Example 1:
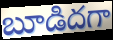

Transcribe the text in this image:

బూడిదగా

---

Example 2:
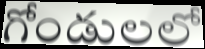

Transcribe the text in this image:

గోండులలో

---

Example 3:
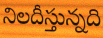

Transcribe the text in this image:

నిలదీస్తున్నది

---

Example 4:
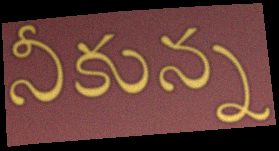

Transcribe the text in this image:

నీకున్న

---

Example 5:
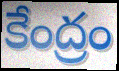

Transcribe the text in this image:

కేంద్రం